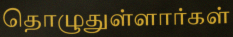
தொழுதுள்ளார்கள்